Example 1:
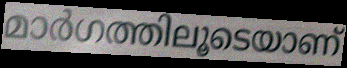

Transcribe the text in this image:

മാർഗത്തിലൂടെയാണ്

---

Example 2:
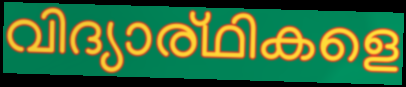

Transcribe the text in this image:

വിദ്യാര്ഥികളെ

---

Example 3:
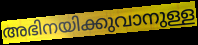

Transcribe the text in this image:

അഭിനയിക്കുവാനുള്ള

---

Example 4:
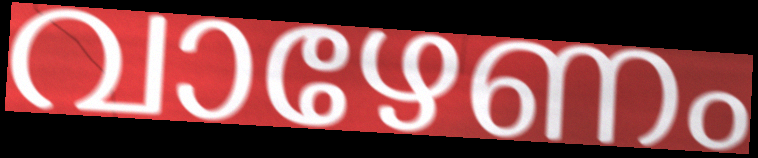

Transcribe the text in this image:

വാഴേണം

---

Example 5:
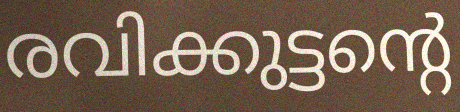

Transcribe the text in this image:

രവിക്കുട്ടന്റെ